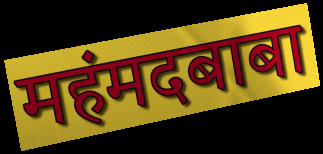
महंमदबाबा